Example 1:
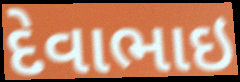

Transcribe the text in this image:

દેવાભાઇ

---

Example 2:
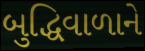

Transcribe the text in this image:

બુદ્ધિવાળાને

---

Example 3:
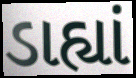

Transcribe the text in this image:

ડાહ્યાં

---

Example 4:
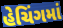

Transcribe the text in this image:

હેચિંગમાં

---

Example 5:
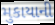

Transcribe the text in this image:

મુકાયાની